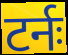
टर्नः